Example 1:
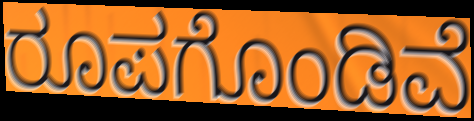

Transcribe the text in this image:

ರೂಪಗೊಂಡಿವೆ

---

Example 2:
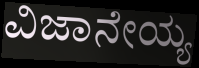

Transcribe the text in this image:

ವಿಜಾನೇಯ್ಯ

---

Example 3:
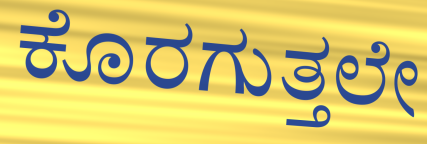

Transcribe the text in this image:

ಕೊರಗುತ್ತಲೇ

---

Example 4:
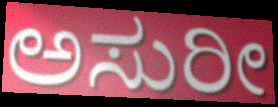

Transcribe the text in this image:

ಅಸುರೀ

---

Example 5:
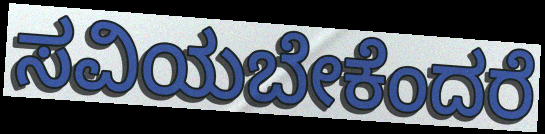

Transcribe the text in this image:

ಸವಿಯಬೇಕೆಂದರೆ